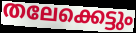
തലേക്കെട്ടും